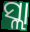
ସ୍ଲା